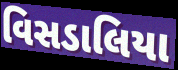
વિસડાલિયા